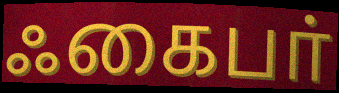
ஃகைபர்